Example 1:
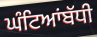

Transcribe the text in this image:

ਘੰਟਿਆਂਬੱਧੀ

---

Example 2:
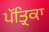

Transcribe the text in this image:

ਪੱਤ੍ਰਿਕਾ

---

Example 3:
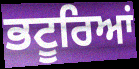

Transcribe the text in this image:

ਭਟੂਰਿਆਂ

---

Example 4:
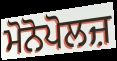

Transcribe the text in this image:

ਮੋਨੋਪੋਲਜ਼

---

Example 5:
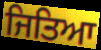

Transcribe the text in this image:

ਜਿਤਿਆ